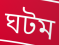
ঘটম